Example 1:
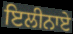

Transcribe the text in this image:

ਇਲੀਨਾਏ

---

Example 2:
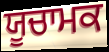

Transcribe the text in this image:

ਯੂਚਾਮਕ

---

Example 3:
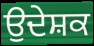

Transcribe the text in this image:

ਉਦੇਸ਼ਕ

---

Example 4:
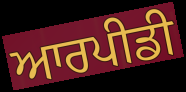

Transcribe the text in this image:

ਆਰਪੀਡੀ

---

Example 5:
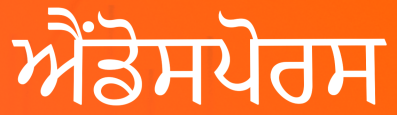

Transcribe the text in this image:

ਐਂਡੋਸਪੋਰਸ